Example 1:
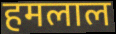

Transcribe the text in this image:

हमलाल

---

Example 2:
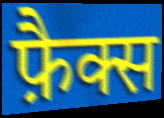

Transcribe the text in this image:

फ़ैक्स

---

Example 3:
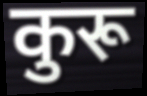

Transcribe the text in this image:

कुरू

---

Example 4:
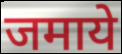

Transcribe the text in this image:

जमाये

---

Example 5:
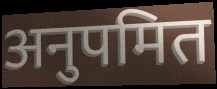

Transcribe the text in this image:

अनुपमित